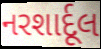
નરશાર્દૂલ